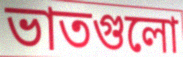
ভাতগুলো